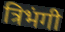
त्रिभंगी